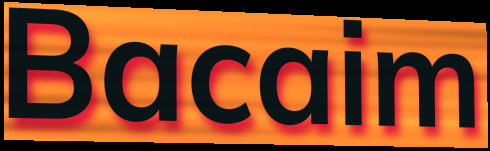
Bacaim